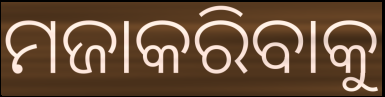
ମଜାକରିବାକୁ